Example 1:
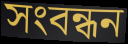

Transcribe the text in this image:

সংবন্ধন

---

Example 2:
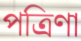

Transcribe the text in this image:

পত্রিণা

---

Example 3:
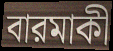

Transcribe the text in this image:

বারমাকী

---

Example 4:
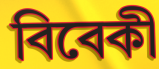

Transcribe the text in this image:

বিবেকী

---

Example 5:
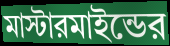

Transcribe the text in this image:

মাস্টারমাইন্ডের